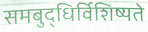
समबुद्धिर्विशिष्यते